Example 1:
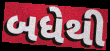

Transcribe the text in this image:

બધેથી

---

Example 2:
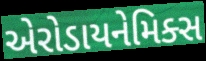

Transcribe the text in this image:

એરોડાયનેમિક્સ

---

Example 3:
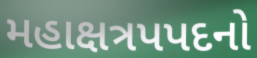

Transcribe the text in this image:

મહાક્ષત્રપપદનો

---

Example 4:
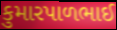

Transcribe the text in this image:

કુમારપાળભાઈ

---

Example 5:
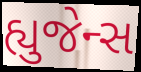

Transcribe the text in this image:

હ્યુજેન્સ